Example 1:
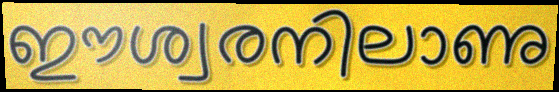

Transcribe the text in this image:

ഈശ്വരനിലാണു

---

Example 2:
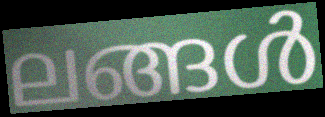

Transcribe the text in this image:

ലങ്ങൾ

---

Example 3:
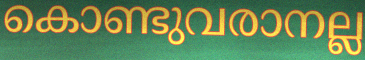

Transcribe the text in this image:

കൊണ്ടുവരാനല്ല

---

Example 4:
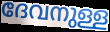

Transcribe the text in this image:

ദേവനുള്ള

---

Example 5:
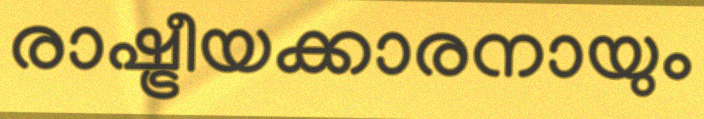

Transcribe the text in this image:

രാഷ്ട്രീയക്കാരനായും